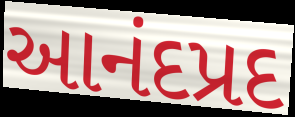
આનંદપ્રદ